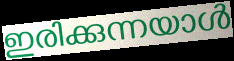
ഇരിക്കുന്നയാൾ